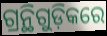
ଗ୍ରନ୍ଥିଗୁଡ଼ିକରେ